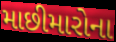
માછીમારોના